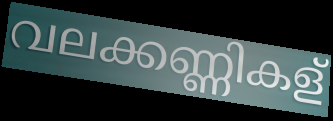
വലക്കണ്ണികള്